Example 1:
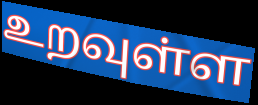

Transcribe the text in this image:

உறவுள்ள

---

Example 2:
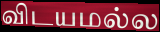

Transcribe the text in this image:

விடயமல்ல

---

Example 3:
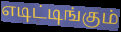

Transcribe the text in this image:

எடிட்டிங்கும்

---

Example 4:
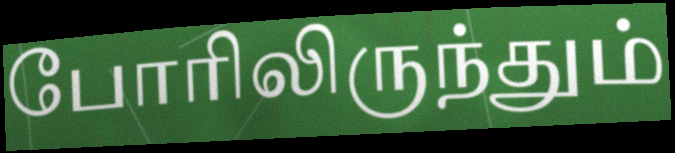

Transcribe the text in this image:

போரிலிருந்தும்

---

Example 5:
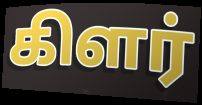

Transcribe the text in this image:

கிளர்